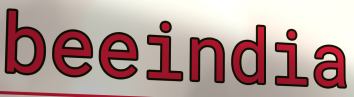
beeindia